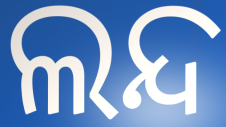
ଲନ୍ଦ